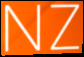
NZ